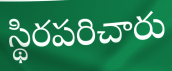
స్థిరపరిచారు